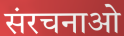
संरचनाओ